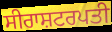
ਸੀਰਾਸ਼ਟਰਪਤੀ